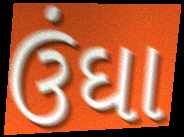
ઉંઘા